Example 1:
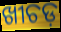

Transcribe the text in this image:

ଖୀଚଡ଼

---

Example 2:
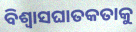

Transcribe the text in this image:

ବିଶ୍ୱାସଘାତକତାକୁ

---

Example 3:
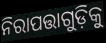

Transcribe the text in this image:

ନିରାପତ୍ତାଗୁଡ଼ିକୁ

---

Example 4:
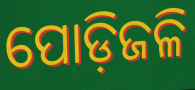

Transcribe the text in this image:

ପୋଡ଼ିଜଳି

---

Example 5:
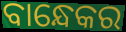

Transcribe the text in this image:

ବାନ୍ଧେକର